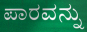
ಪಾರವನ್ನು